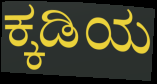
ಕ್ಕಡಿಯ